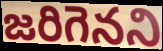
జరిగెనని